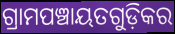
ଗ୍ରାମପଞ୍ଚାୟତଗୁଡ଼ିକର